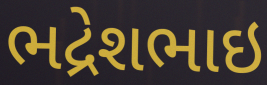
ભદ્રેશભાઇ